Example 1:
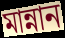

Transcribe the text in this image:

মান্নান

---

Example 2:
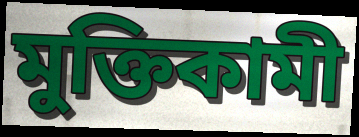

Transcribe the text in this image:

মুক্তিকামী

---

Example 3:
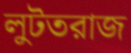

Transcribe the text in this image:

লুটতরাজ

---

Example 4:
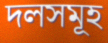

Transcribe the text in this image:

দলসমূহ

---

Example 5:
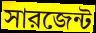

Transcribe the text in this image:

সারজেন্ট